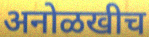
अनोळखीच